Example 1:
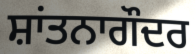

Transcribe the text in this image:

ਸ਼ਾਂਤਨਾਗੌਦਰ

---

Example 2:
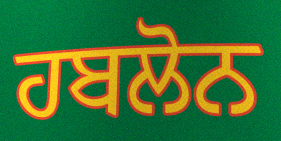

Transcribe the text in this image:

ਹਬਲੋਨ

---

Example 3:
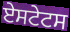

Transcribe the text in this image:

ਏਸਟੇਟਸ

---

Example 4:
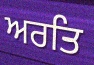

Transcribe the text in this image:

ਅਰਤਿ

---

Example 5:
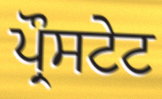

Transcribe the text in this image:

ਪ੍ਰੌਸਟੇਟ